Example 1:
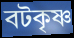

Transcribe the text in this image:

বটকৃষ্ণ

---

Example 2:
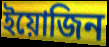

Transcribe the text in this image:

ইয়োজিন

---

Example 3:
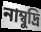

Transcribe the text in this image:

নাম্বুদ্রি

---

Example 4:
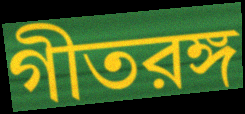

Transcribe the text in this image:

গীতরঙ্গ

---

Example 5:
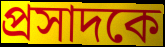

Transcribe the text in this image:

প্রসাদকে